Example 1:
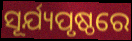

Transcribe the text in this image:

ସୂର୍ଯ୍ୟପୃଷ୍ଠରେ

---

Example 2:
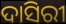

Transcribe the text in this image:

ଦାସିରୀ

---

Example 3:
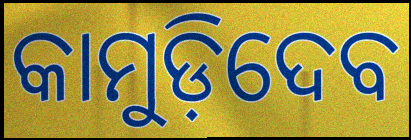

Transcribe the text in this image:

କାମୁଡ଼ିଦେବ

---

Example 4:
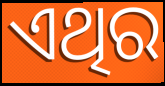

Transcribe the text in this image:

ଏଥିର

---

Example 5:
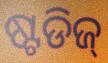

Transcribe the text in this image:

ଷ୍ଟଡିଜ୍